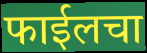
फाईलचा